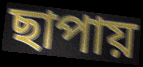
ছাপায়